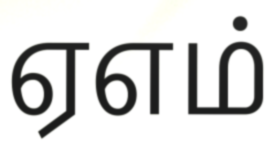
ஏஎம்